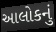
આલોકનું